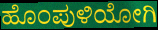
ಹೊಂಪುಳಿಯೋಗಿ